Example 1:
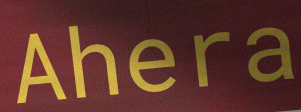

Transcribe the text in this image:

Ahera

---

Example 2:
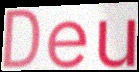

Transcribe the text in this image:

Deu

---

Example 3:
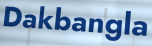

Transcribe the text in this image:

Dakbangla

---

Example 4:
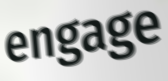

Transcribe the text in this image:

engage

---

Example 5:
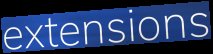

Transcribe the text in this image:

extensions